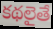
కథలైతే